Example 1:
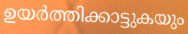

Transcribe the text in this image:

ഉയർത്തിക്കാട്ടുകയും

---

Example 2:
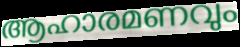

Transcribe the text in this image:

ആഹാരമണവും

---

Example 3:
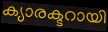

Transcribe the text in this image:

ക്യാരക്ടറായി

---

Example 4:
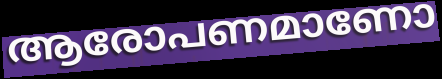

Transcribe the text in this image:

ആരോപണമാണോ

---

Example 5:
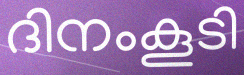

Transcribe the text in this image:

ദിനംകൂടി